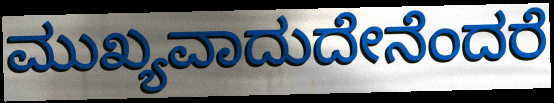
ಮುಖ್ಯವಾದುದೇನೆಂದರೆ